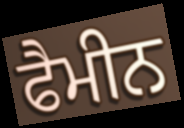
ਫੈਮੀਨ